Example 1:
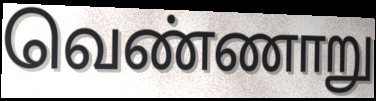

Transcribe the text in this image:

வெண்ணாறு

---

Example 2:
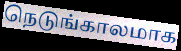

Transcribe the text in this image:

நெடுங்காலமாக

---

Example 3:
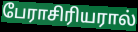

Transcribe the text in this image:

பேராசிரியரால்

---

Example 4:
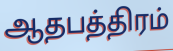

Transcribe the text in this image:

ஆதபத்திரம்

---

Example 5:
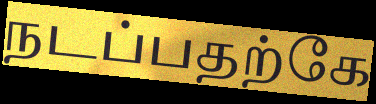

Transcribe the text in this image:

நடப்பதற்கே